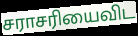
சராசரியைவிட